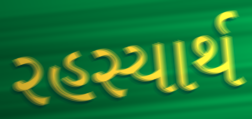
રહસ્યાર્થ